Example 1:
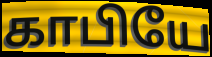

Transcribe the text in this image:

காபியே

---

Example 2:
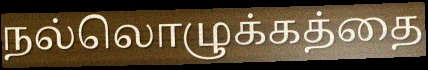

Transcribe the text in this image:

நல்லொழுக்கத்தை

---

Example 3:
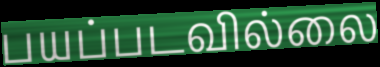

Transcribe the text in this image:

பயப்படவில்லை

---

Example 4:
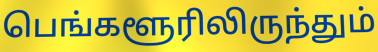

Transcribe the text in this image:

பெங்களூரிலிருந்தும்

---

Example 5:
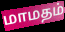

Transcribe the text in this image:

மாமதம்